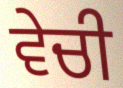
ਵੇਚੀ